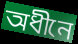
অধীনে